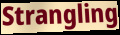
Strangling